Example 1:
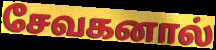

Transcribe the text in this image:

சேவகனால்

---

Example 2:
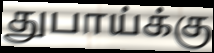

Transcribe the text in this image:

துபாய்க்கு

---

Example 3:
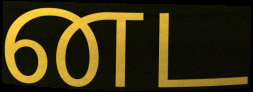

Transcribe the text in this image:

னட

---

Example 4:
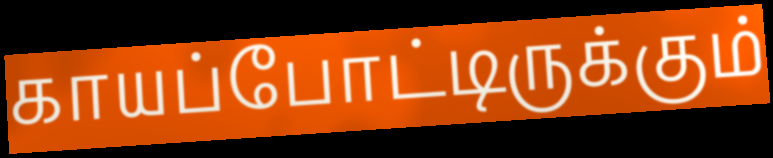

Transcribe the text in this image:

காயப்போட்டிருக்கும்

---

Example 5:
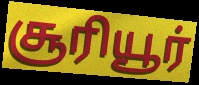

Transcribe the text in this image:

சூரியூர்